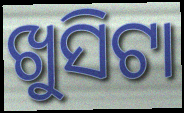
ଖୁସିଟା